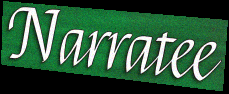
Narratee